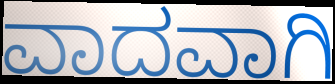
ವಾದವಾಗಿ